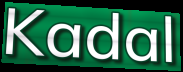
Kadal